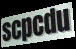
scpcdu